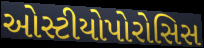
ઓસ્ટીયોપોરોસિસ